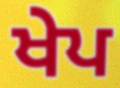
ਖੇਪ